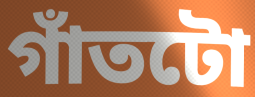
গাঁতটো